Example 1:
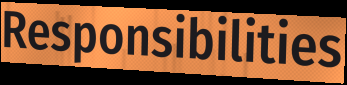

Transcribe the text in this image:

Responsibilities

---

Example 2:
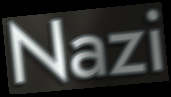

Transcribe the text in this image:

Nazi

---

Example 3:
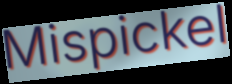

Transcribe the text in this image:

Mispickel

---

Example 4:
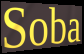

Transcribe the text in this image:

Soba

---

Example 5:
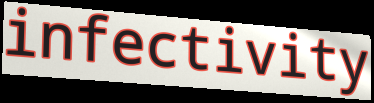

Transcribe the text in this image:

infectivity